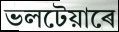
ভলটেয়াৰে